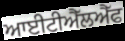
ਆਈਟੀਐੱਲਐੱਫ